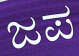
ಜಪ